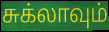
சுக்லாவும்